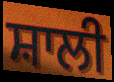
ਸ਼ਾਲੀ